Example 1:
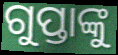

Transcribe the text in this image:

ଗୁପ୍ତାଙ୍କୁ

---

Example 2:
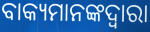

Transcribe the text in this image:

ବାକ୍ୟମାନଙ୍କଦ୍ୱାରା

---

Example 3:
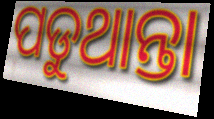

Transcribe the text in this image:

ପଡୁଥାନ୍ତା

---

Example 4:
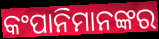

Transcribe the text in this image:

କଂପାନିମାନଙ୍କର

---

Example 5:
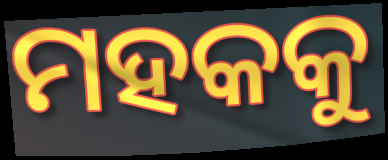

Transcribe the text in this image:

ମହକକୁ